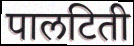
पालटिती